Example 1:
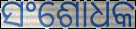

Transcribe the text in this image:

ସଂଶୋଧକ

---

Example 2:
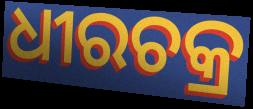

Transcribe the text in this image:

ଧୀରଚକ୍ର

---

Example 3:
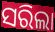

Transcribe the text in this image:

ସରିଲା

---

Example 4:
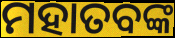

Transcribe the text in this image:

ମହାତବଙ୍କ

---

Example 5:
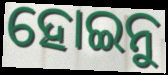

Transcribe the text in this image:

ହୋଇନୁ